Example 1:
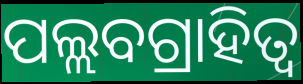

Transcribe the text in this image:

ପଲ୍ଲବଗ୍ରାହିତ୍ୱ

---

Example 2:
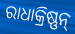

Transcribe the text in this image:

ରାଧାକ୍ରିଷ୍ଣନ୍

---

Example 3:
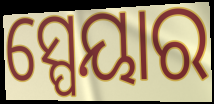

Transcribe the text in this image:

ସ୍ପେୟାର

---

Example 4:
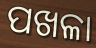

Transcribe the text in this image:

ପଖଳା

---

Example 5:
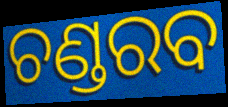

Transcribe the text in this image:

ଚଣ୍ଡରବ